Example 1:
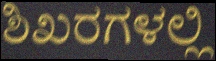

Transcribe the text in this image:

ಶಿಖರಗಳಲ್ಲಿ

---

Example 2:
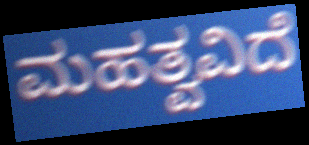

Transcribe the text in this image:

ಮಹತ್ವವಿದೆ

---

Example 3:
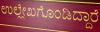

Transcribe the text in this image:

ಉಲ್ಲೇಖಗೊಂಡಿದ್ದಾರೆ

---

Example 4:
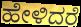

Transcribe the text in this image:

ಹೇಳಿದರೆ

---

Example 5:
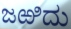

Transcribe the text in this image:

ಜಱಿದು